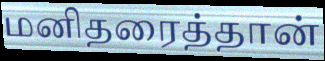
மனிதரைத்தான்